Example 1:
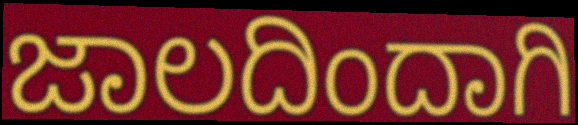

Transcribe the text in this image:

ಜಾಲದಿಂದಾಗಿ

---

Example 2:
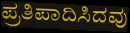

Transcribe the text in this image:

ಪ್ರತಿಪಾದಿಸಿದವು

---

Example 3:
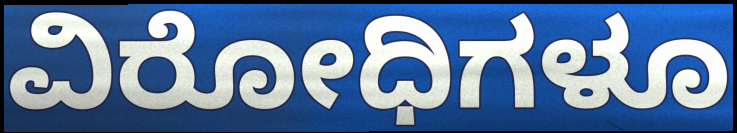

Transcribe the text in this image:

ವಿರೋಧಿಗಳೂ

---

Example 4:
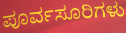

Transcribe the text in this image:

ಪೂರ್ವಸೂರಿಗಳು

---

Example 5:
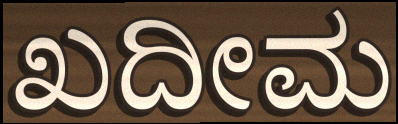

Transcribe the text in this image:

ಖದೀಮ